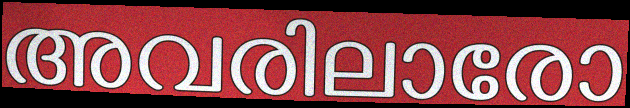
അവരിലാരോ